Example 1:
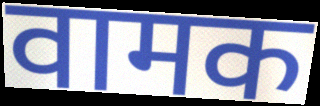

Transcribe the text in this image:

वामक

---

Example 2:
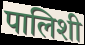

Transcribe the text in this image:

पालिशी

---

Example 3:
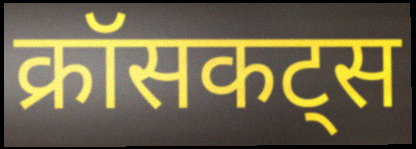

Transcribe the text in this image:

क्रॉसकट्स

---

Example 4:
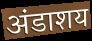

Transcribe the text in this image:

अंडाशय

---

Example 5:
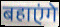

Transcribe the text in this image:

बहाएंगे